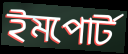
ইমপোর্ট